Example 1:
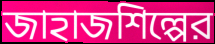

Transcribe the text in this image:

জাহাজশিল্পের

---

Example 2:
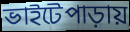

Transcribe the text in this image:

ভাইটেপাড়ায়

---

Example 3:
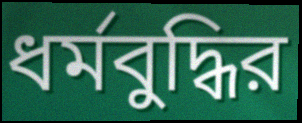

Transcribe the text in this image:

ধর্মবুদ্ধির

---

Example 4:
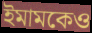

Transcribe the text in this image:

ইমামকেও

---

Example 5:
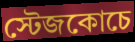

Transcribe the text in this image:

স্টেজকোচে